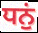
ਧਨੁਂ